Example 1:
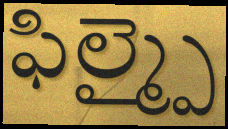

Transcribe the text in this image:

ఫిల్మ్పై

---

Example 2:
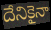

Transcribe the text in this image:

దేనికైనా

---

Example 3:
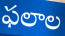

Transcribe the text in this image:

ఫలాల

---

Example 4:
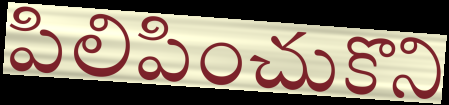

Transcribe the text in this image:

పిలిపించుకొని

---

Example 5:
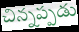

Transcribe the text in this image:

చిన్నప్పడు